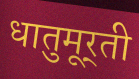
धातुमूर्ती